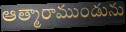
ఆత్మారాముండును